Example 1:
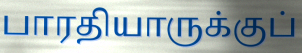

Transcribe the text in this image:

பாரதியாருக்குப்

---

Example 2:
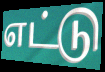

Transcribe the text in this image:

எட்டு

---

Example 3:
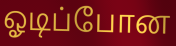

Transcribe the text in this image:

ஓடிப்போன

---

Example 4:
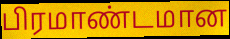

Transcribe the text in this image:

பிரமாண்டமான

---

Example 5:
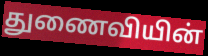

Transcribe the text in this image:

துணைவியின்